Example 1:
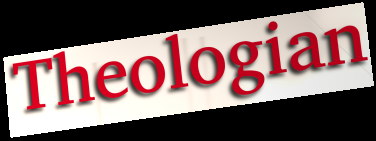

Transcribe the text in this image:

Theologian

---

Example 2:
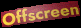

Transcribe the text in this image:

Offscreen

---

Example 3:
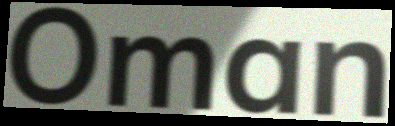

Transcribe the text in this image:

Oman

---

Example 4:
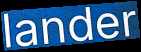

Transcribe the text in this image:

lander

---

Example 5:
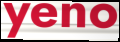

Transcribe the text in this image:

yeno